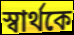
স্বার্থকে